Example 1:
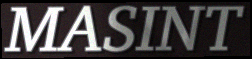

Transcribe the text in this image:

MASINT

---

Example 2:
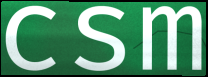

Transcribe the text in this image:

csm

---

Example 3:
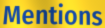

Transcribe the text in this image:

Mentions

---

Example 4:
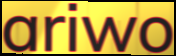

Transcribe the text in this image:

ariwo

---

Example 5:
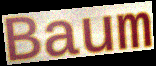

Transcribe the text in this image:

Baum